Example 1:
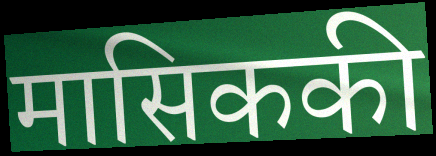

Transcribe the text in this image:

मासिककी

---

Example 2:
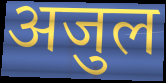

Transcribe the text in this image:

अजुल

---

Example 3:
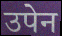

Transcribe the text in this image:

उपेन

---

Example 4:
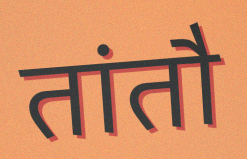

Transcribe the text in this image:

तांतौ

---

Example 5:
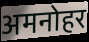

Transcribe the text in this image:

अमनोहर